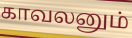
காவலனும்